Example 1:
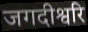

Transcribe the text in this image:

जगदीश्वरि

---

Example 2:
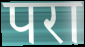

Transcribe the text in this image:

परा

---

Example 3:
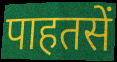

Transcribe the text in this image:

पाहतसें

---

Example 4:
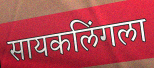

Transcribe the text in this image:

सायकलिंगला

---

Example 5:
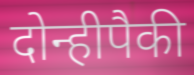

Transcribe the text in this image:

दोन्हीपैकी